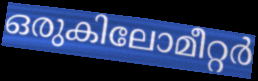
ഒരുകിലോമീറ്റർ